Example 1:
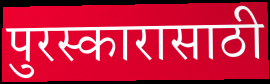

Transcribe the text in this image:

पुरस्कारासाठी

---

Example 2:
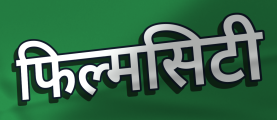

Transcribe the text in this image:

फिल्मसिटी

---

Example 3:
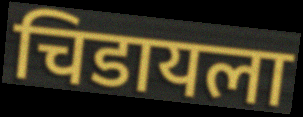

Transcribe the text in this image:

चिडायला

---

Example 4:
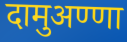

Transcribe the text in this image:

दामुअण्णा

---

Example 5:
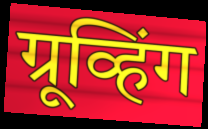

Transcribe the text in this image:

ग्रूव्हिंग